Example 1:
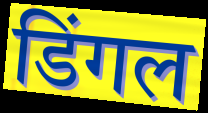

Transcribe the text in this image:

डिंगल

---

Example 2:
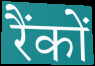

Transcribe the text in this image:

रैंकों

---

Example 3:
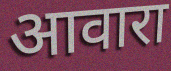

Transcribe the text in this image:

आवारा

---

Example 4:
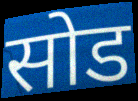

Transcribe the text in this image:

सोड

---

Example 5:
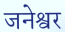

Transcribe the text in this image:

जनेश्वर